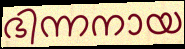
ഭിന്നനായ